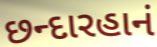
છન્દારહાનં